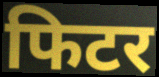
फिटर